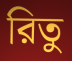
রিতু